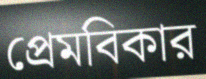
প্রেমবিকার